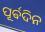
ପୂର୍ଵଦିନ